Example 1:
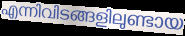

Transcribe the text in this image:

എന്നിവിടങ്ങളിലുണ്ടായ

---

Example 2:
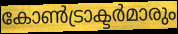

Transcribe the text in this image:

കോൺട്രാക്ടർമാരും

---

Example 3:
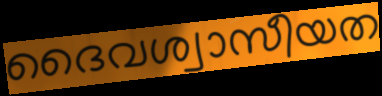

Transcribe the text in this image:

ദൈവശ്വാസീയത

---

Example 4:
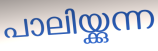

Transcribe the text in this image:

പാലിയ്ക്കുന്ന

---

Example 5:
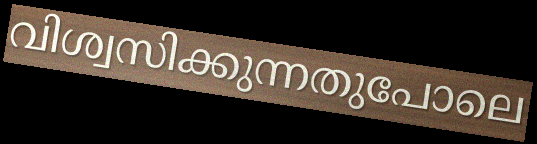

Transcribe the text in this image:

വിശ്വസിക്കുന്നതുപോലെ